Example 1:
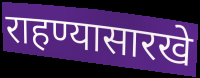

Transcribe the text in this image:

राहण्यासारखे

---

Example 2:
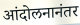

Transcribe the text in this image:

आंदोलनानंतर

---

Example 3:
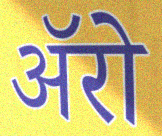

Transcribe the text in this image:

ॲरो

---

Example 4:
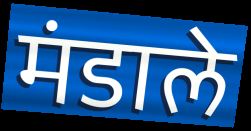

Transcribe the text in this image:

मंडाले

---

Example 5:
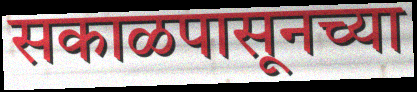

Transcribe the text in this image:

सकाळपासूनच्या